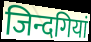
जिन्दगियां